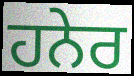
ਹਨੇਰ